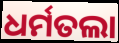
ଧର୍ମତଲା